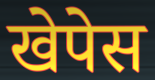
खेपेस